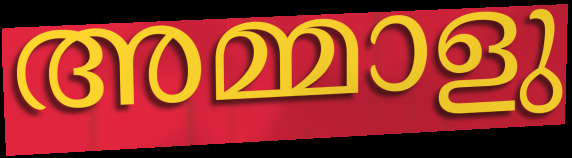
അമ്മാളു